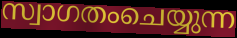
സ്വാഗതംചെയ്യുന്ന